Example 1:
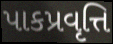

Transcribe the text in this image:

પાકપ્રવૃત્તિ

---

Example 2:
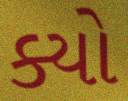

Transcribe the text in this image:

ક્યો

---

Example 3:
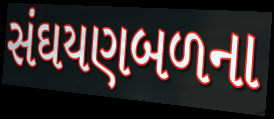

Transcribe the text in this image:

સંઘયણબળના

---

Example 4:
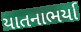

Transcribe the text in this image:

યાતનાભર્યા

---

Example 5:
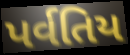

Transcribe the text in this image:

પર્વતિય